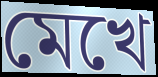
মেখে